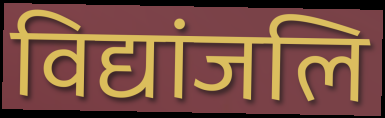
विद्यांजलि